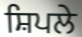
ਸ਼ਿਪਲੇ